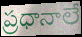
ప్రధానాలే